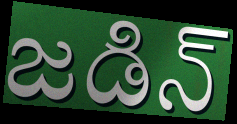
జడిన్